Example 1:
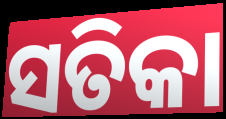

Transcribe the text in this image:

ସତିକା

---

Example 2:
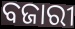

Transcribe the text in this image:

ବଜାରୀ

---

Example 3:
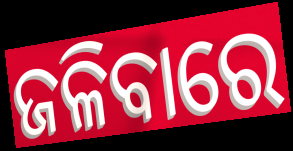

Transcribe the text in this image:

ଜଳିବାରେ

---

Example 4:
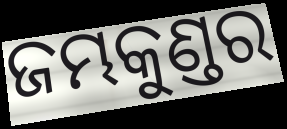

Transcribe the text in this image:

ଜମ୍ଭକୁଣ୍ଡର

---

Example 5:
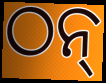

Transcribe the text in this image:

ଠନ୍